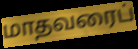
மாதவரைப்